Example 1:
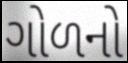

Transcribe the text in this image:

ગોળનો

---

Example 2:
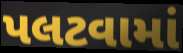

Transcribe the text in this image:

પલટવામાં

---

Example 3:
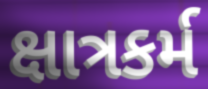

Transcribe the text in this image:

ક્ષાત્રકર્મ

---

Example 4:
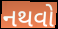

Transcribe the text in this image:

નથવો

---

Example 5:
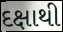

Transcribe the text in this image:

દક્ષાથી